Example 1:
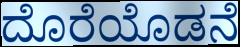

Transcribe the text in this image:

ದೊರೆಯೊಡನೆ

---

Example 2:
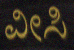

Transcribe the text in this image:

ವೀಸಿ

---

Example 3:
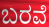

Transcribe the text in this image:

ಬರವೆ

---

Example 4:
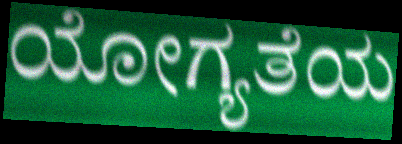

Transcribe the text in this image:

ಯೋಗ್ಯತೆಯ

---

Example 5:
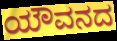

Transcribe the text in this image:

ಯೌವನದ